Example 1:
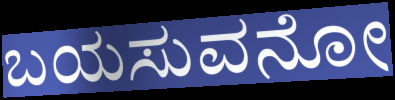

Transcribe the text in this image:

ಬಯಸುವನೋ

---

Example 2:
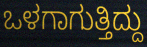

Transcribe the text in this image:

ಒಳಗಾಗುತ್ತಿದ್ದು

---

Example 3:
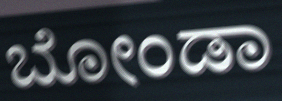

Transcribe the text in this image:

ಬೋಂಡಾ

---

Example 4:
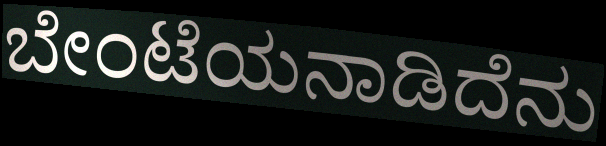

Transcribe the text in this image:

ಬೇಂಟೆಯನಾಡಿದೆನು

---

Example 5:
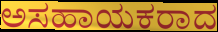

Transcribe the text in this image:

ಅಸಹಾಯಕರಾದ